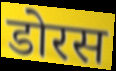
डोरस